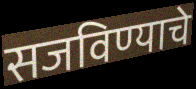
सजविण्याचे